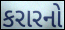
કરારનો